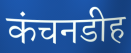
कंचनडीह